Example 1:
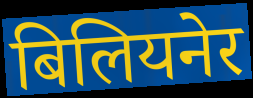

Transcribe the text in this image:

बिलियनेर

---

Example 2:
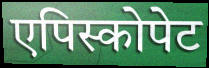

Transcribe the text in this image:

एपिस्कोपेट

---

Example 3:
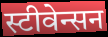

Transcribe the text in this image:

स्टीवेन्सन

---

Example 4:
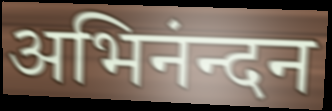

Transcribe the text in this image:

अभिनंन्दन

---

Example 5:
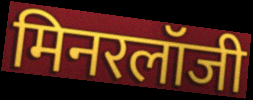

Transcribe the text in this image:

मिनरलॉजी